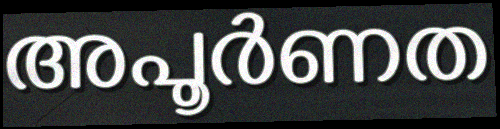
അപൂർണത